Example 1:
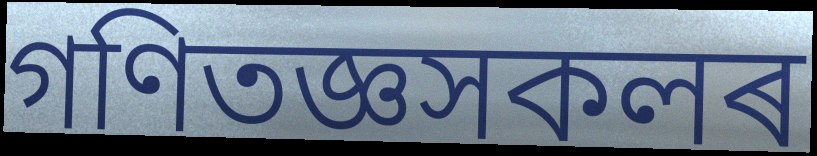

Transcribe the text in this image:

গণিতজ্ঞসকলৰ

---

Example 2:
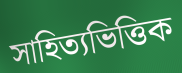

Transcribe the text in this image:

সাহিত্যভিত্তিক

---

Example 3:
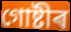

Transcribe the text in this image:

গোষ্টীৰ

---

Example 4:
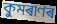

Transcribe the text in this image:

কুমৰাণৰ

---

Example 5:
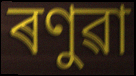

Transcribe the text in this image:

ৰণুৱা